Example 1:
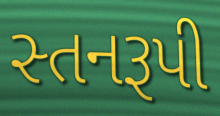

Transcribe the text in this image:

સ્તનરૂપી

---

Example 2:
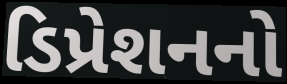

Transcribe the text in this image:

ડિપ્રેશનનો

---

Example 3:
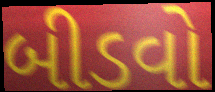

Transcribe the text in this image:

બીડવો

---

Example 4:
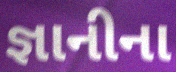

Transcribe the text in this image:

જ્ઞાનીના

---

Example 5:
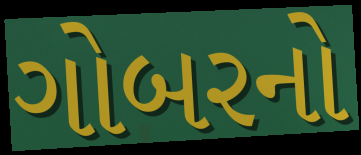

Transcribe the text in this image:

ગોબરનો